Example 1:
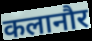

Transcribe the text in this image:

कलानौर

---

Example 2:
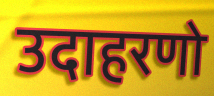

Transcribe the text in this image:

उदाहरणो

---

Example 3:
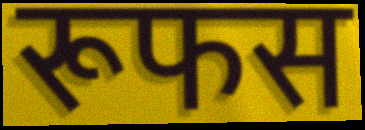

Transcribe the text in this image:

रूफस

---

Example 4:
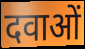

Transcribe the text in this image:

दवाओं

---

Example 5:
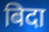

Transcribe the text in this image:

बिदा